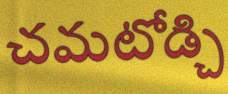
చమటోడ్చి